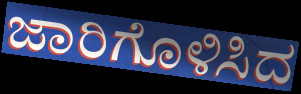
ಜಾರಿಗೊಳಿಸಿದ